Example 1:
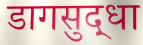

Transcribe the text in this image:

डागसुद्धा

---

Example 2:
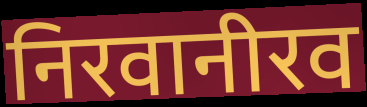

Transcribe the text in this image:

निरवानीरव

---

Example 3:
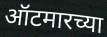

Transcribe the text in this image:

ऑटमारच्या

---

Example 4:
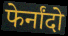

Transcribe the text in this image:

फेर्नांदो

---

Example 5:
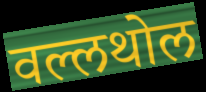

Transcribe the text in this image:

वल्लथोल